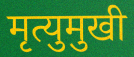
मृत्युमुखी